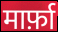
मार्फ़ा